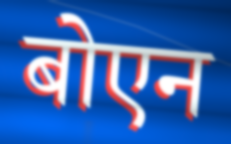
बोएन